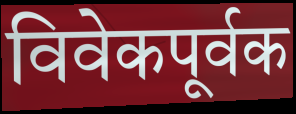
विवेकपूर्वक